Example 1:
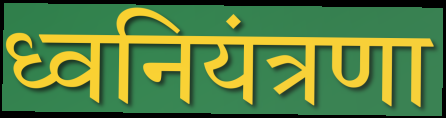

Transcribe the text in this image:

ध्वनियंत्रणा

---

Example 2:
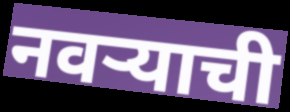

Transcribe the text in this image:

नवऱ्याची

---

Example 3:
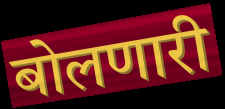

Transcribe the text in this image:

बोलणारी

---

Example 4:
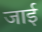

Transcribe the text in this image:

जाई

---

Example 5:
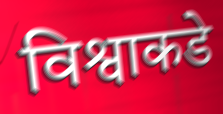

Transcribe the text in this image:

विश्वाकडे